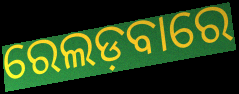
ରେଲଡ଼ବାରେ